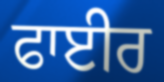
ਫਾਈਰ